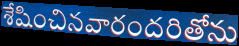
శేషించినవారందరితోను